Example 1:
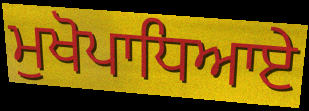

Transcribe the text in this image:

ਮੁਖੋਪਾਧਿਆਏ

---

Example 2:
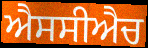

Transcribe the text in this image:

ਐਸਸੀਐਚ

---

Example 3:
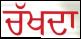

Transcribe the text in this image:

ਚੱਖਦਾ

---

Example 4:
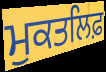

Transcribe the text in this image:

ਮੁਕਤਲਿਫ਼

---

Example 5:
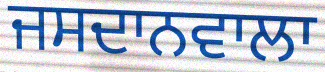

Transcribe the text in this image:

ਜਸਦਾਨਵਾਲਾ